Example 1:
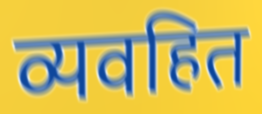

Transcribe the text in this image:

व्यवहित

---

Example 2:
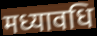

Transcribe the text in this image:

मध्यावधि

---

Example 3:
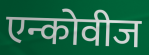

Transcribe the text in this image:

एन्कोवीज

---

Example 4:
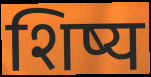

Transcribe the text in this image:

शिष्य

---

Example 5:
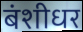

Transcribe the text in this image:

बंशीधर